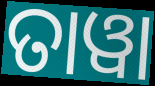
ତାୱା